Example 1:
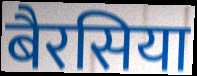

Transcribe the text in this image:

बैरसिया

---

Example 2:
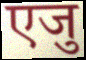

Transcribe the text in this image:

एजु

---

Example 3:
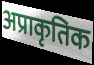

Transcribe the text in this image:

अप्राकृतिक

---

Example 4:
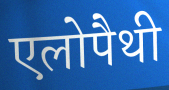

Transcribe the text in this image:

एलोपैथी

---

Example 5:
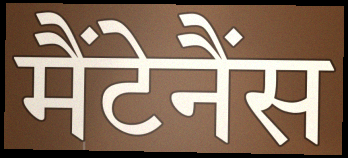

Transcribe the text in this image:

मैंटेनैंस